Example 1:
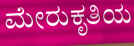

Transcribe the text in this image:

ಮೇರುಕೃತಿಯ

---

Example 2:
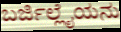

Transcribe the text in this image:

ಬರ್ಜಿಲ್ಲೈಯನು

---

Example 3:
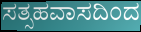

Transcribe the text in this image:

ಸತ್ಸಹವಾಸದಿಂದ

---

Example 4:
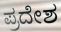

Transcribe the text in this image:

ಪ್ರದೇಶ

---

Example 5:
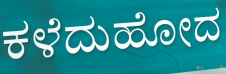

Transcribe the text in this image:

ಕಳೆದುಹೋದ